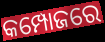
କମ୍ପୋଜରେ